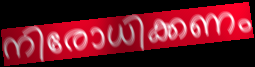
നിരോധിക്കണം